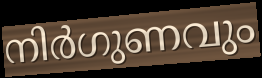
നിർഗുണവും